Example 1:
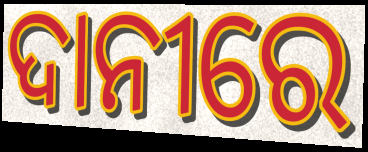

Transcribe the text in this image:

ଦାନୀରେ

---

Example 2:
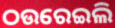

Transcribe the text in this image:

ଠଉରେଇଲି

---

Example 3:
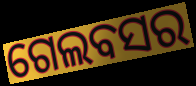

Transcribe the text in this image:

ଗେଲବସର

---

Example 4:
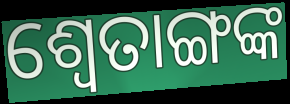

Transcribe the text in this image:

ଶ୍ୱେତାଙ୍ଗଙ୍କ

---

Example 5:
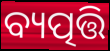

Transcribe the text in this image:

ବ୍ୟତ୍ପତ୍ତି